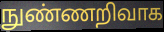
நுண்ணறிவாக